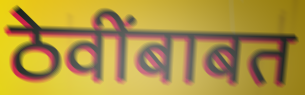
ठेवींबाबत